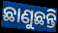
ଛାଣୁଛନ୍ତି